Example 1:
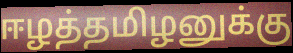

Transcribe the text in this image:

ஈழத்தமிழனுக்கு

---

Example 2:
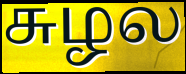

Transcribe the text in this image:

சுழல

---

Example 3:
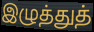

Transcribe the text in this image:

இழுத்துத்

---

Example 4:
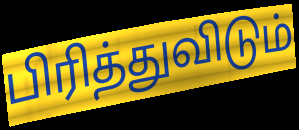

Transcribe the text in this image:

பிரித்துவிடும்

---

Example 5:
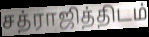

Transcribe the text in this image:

சத்ராஜித்திடம்